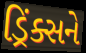
ડ્રિંક્સને